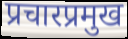
प्रचारप्रमुख